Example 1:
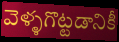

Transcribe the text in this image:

వెళ్ళగొట్టడానికీ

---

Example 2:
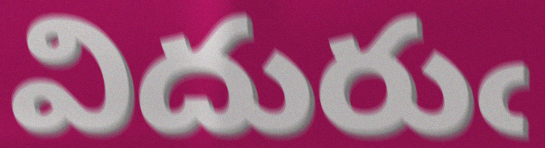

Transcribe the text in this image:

విదురుఁ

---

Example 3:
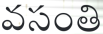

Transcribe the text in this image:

వసంతి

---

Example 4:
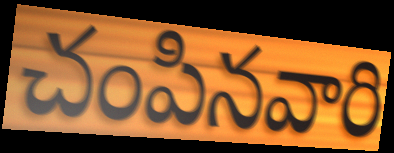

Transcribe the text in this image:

చంపినవారి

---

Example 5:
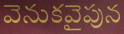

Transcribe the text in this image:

వెనుకవైపున